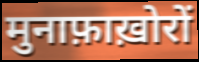
मुनाफ़ाख़ोरों